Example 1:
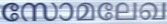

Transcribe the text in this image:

സോമലേഖ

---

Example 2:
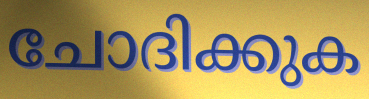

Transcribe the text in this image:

ചോദിക്കുക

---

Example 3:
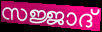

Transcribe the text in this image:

സജ്ജാദ്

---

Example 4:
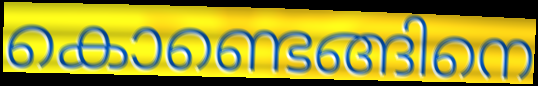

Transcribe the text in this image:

കൊണ്ടെങ്ങിനെ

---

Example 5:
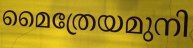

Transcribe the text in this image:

മൈത്രേയമുനി